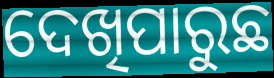
ଦେଖିପାରୁଛ